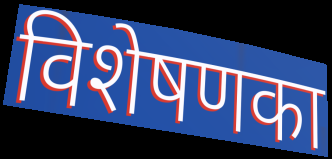
विशेषणका